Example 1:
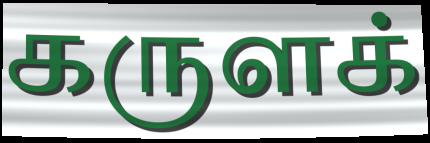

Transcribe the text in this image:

கருளக்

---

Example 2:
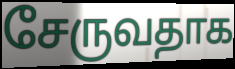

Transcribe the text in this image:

சேருவதாக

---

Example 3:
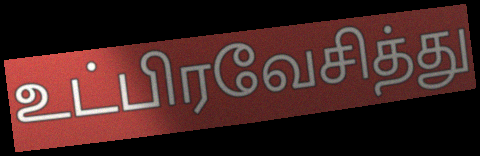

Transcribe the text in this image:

உட்பிரவேசித்து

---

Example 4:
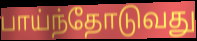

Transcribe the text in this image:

பாய்ந்தோடுவது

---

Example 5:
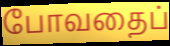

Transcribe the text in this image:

போவதைப்